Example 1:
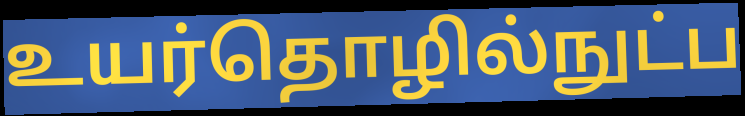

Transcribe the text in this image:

உயர்தொழில்நுட்ப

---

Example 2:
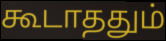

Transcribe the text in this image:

கூடாததும்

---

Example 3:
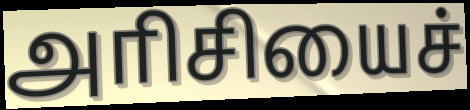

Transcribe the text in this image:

அரிசியைச்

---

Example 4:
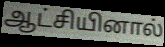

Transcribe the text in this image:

ஆட்சியினால்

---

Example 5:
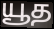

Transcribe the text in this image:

யூத